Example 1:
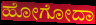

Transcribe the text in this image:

ಹೋಗೋದಾ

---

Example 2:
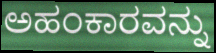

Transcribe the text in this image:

ಅಹಂಕಾರವನ್ನು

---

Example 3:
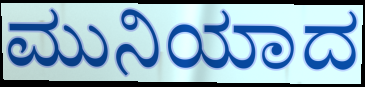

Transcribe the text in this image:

ಮುನಿಯಾದ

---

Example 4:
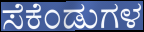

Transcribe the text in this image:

ಸೆಕೆಂಡುಗಳ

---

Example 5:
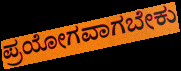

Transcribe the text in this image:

ಪ್ರಯೋಗವಾಗಬೇಕು